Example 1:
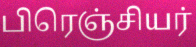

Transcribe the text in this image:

பிரெஞ்சியர்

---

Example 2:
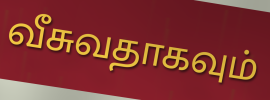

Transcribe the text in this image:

வீசுவதாகவும்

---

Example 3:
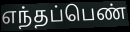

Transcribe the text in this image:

எந்தப்பெண்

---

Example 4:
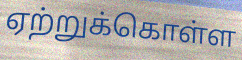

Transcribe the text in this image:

ஏற்றுக்கொள்ள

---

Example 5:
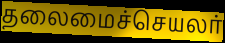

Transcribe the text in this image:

தலைமைச்செயலர்